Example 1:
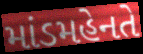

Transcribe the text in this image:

માંડમહેનતે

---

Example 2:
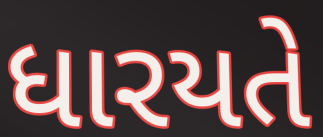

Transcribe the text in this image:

ધારયતે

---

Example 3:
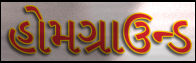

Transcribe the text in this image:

હોમગ્રાઉન્ડ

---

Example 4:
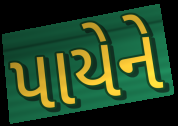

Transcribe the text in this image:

પાયેને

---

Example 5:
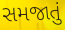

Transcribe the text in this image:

સમજાતું